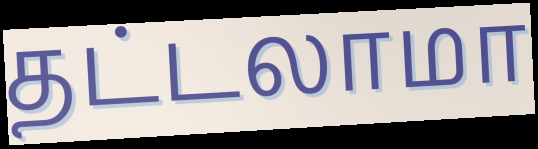
தட்டலாமா